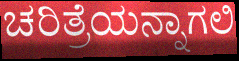
ಚರಿತ್ರೆಯನ್ನಾಗಲಿ